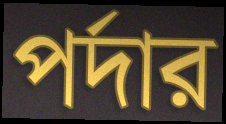
পর্দার